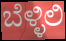
ಬೆಳ್ಳಿಲಿ